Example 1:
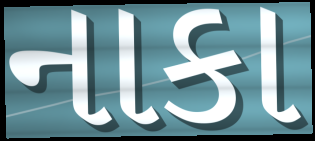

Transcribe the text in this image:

નાકા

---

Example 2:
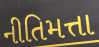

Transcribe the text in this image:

નીતિમત્તા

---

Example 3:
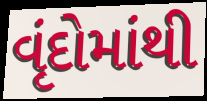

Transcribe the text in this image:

વૃંદોમાંથી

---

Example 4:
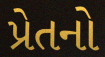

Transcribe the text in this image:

પ્રેતનો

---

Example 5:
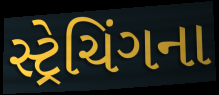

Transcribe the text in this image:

સ્ટ્રેચિંગના